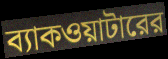
ব্যাকওয়াটারের